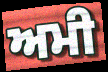
ਅਮੀ